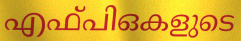
എഫ്പിഒകളുടെ